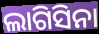
ଲାଗିସିନା